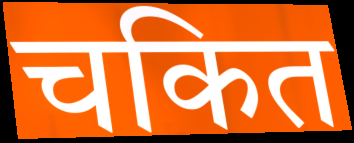
चकित